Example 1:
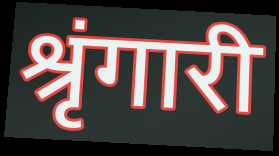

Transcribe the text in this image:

श्रृंगारी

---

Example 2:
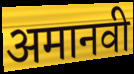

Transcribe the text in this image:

अमानवी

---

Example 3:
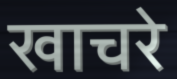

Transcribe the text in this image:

खाचरे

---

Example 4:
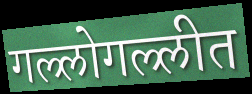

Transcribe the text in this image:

गल्लोगल्लीत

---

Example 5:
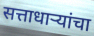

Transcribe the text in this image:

सत्ताधाऱ्यांचा